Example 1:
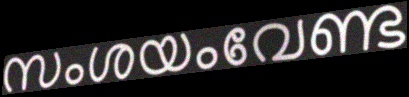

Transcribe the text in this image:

സംശയംവേണ്ട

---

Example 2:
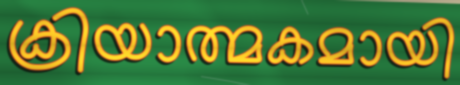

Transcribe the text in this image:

ക്രിയാത്മകമായി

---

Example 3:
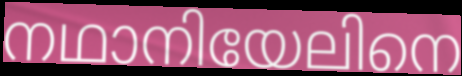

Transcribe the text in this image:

നഥാനിയേലിനെ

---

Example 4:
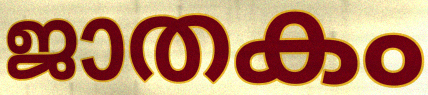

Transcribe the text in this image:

ജാതകം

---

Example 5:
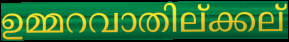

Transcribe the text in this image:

ഉമ്മറവാതില്ക്കല്